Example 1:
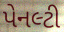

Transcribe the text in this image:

પેનલ્ટી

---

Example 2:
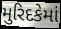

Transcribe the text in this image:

મુરિદકેમાં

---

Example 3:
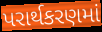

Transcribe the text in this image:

પરાર્થકરણમાં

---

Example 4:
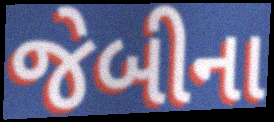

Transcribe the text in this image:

જેબીના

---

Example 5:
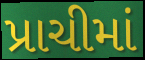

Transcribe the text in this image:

પ્રાચીમાં